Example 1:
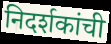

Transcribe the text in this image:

निदर्शकांची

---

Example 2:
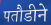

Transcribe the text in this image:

पतौडीने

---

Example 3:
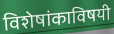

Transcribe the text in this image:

विशेषांकाविषयी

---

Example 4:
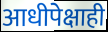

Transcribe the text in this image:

आधीपेक्षाही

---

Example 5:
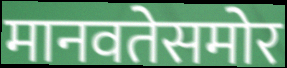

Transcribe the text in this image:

मानवतेसमोर